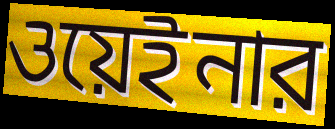
ওয়েইনার